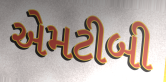
એમટીબી